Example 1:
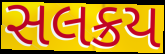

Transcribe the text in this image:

સલક્રય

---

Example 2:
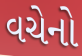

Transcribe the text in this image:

વચેનો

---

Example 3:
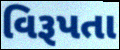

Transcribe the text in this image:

વિરૂપતા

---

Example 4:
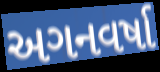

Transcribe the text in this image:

અગનવર્ષા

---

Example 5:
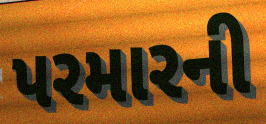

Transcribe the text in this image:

પરમારની